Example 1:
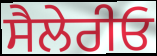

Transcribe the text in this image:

ਸੈਲੇਰੀਓ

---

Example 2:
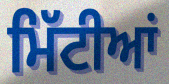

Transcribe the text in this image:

ਮਿੱਟੀਆਂ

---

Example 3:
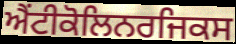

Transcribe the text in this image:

ਐਂਟੀਕੋਲਿਨਰਜਿਕਸ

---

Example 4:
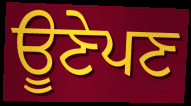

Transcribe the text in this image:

ਊਣੇਪਣ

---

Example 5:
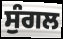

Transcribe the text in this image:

ਸੁੰਗਲ